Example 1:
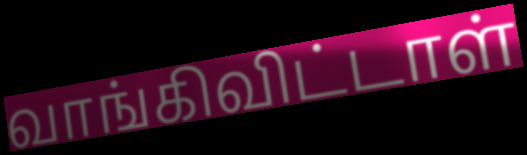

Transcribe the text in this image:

வாங்கிவிட்டாள்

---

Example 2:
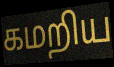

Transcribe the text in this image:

கமறிய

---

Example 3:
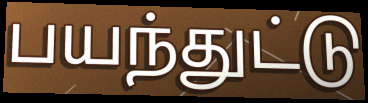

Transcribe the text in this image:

பயந்துட்டு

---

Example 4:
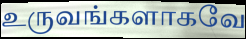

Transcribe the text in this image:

உருவங்களாகவே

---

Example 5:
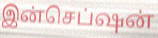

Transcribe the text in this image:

இன்செப்ஷன்